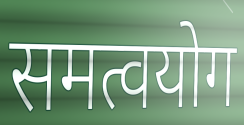
समत्वयोग